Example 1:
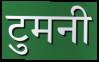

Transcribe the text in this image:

टुमनी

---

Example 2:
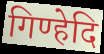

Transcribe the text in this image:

गिण्हेदि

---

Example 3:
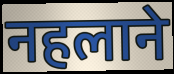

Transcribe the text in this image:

नहलाने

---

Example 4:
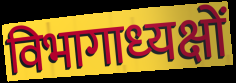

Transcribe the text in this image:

विभागाध्‍यक्षों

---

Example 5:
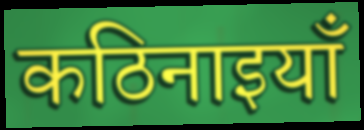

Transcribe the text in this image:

कठिनाइयाँ